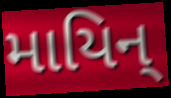
માયિન્